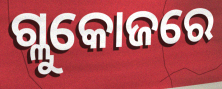
ଗ୍ଲୁକୋଜରେ